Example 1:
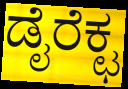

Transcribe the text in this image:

ಡೈರೆಕ್ಟ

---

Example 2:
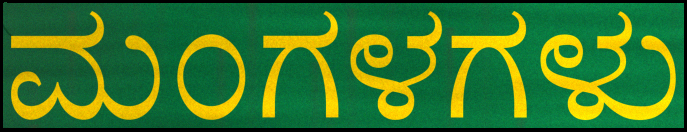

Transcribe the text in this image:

ಮಂಗಳಗಳು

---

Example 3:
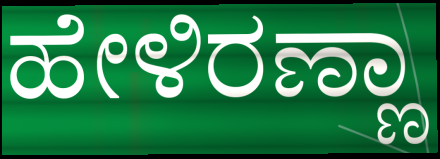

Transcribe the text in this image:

ಹೇಳಿರಣ್ಣಾ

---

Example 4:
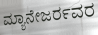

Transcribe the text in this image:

ಮ್ಯಾನೇಜರ್ರವರ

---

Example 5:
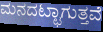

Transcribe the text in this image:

ಮನದಟ್ಟಾಗುತ್ತವೆ